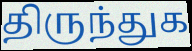
திருந்துக